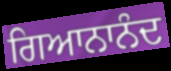
ਗਿਆਨਾਨੰਦ